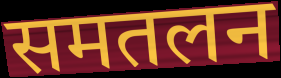
समतलन